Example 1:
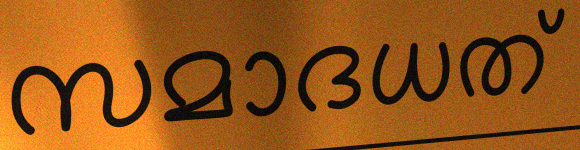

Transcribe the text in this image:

സമാദധത്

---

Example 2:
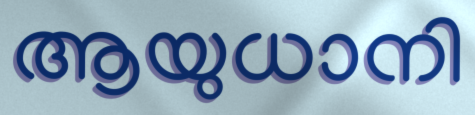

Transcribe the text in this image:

ആയുധാനി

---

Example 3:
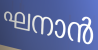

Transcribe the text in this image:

ഘനാൻ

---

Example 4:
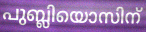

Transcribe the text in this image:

പുബ്ലിയൊസിന്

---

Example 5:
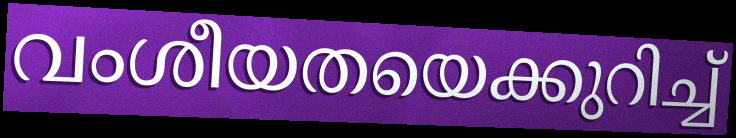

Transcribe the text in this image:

വംശീയതയെക്കുറിച്ച്